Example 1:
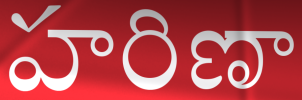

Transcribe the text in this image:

హరిణా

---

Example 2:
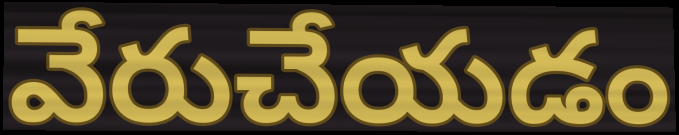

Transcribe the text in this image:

వేరుచేయడం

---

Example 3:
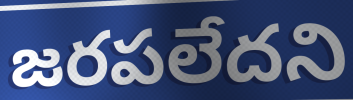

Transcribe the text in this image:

జరపలేదని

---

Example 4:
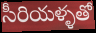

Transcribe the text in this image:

సీరియళ్ళతో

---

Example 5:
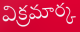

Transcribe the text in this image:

విక్రమార్క